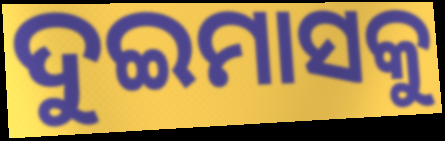
ଦୁଇମାସକୁ